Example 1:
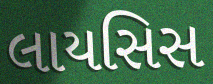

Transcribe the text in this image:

લાયસિસ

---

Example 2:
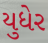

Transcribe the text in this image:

યુધેર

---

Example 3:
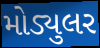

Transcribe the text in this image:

મોડ્યુલર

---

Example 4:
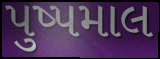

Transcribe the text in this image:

પુષ્પમાલ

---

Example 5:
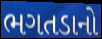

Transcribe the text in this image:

ભગતડાનો